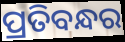
ପ୍ରତିବନ୍ଧର